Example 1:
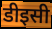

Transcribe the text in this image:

डीइसी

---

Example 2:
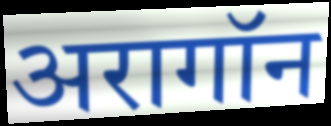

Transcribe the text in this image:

अरागॉन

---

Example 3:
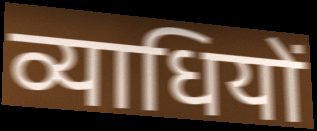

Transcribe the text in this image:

व्याधियों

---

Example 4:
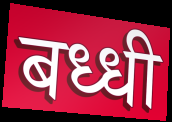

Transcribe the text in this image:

बध्धी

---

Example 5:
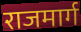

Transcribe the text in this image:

राजमार्ग